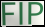
FIP